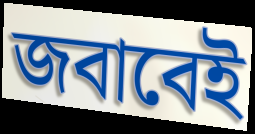
জবাবেই